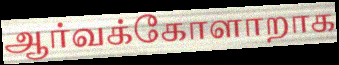
ஆர்வக்கோளாறாக